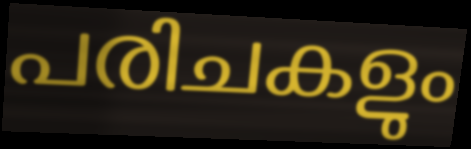
പരിചകളും